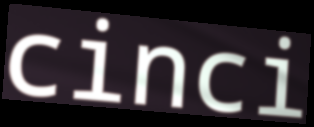
cinci